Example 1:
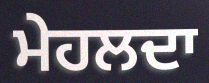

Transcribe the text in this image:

ਮੇਹਲਦਾ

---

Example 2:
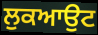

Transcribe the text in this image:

ਲੁਕਆਉਟ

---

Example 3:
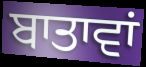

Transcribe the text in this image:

ਬਾਤਾਵਾਂ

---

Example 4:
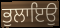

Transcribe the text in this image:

ਭੁਲਾਇਉ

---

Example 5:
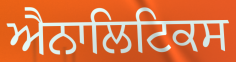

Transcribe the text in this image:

ਐਨਾਲਿਟਿਕਸ